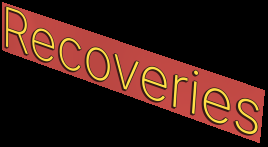
Recoveries